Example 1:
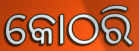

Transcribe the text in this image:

କୋଠରି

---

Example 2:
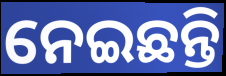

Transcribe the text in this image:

ନେଇଛନ୍ତି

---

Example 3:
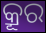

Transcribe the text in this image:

କ୍ରୂର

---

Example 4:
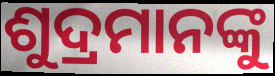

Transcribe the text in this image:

ଶୁଦ୍ରମାନଙ୍କୁ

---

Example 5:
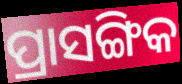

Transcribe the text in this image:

ପ୍ରାସଙ୍ଗିକ